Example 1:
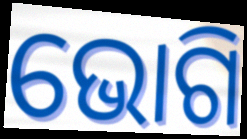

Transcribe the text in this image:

ଭୋଗି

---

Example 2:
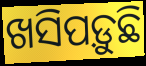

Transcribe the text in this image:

ଖସିପଡ଼ୁଛି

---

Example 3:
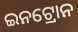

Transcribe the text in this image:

ଇନଟ୍ରୋନ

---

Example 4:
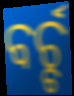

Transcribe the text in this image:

ବର୍ଚ୍ଚ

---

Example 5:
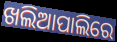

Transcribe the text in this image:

ଖଲିଆପାଲିରେ